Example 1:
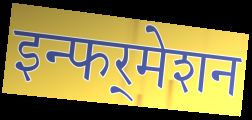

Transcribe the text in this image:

इन्फर्मेशन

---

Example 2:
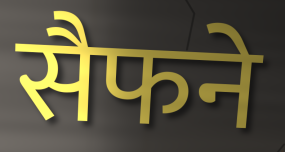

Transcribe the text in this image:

सैफने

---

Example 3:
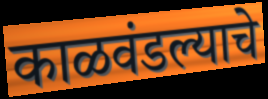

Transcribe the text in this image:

काळवंडल्याचे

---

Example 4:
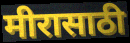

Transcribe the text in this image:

मीरासाठी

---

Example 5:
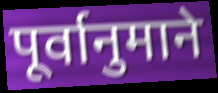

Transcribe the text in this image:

पूर्वानुमाने